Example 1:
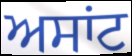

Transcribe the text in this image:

ਅਸਾਂਟ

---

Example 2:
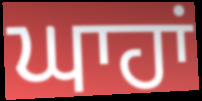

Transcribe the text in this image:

ਘਾਹਾਂ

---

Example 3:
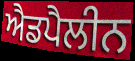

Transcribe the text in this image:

ਐਡਪੈਲੀਨ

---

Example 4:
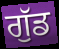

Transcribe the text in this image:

ਗੁੱਡ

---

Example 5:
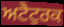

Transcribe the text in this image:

ਅਟੈਟੁਰਕ